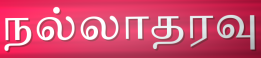
நல்லாதரவு